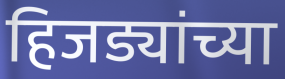
हिजड्यांच्या